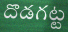
దొడగట్ట